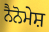
ਨੈਨੋਮੇਸ਼